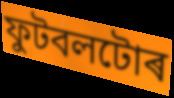
ফুটবলটোৰ